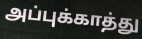
அப்புக்காத்து